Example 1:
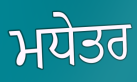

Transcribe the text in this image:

ਮਧੇਤਰ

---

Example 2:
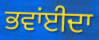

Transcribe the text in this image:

ਭਵਾਂਈਦਾ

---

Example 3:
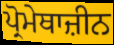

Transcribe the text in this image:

ਪ੍ਰੋਮੇਥਾਜ਼ੀਨ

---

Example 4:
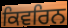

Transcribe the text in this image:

ਕਿਵਰਿਨ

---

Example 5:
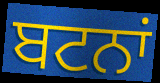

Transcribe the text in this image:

ਬਟਨਾਂ